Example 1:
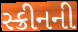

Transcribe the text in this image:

સ્ક્રીનની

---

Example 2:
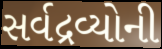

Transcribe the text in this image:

સર્વદ્રવ્યોની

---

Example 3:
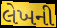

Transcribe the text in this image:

લેખની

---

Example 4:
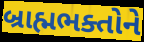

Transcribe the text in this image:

બ્રાહ્મભક્તોને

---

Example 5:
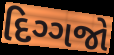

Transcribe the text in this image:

દિગ્ગજો